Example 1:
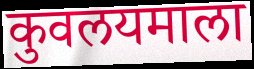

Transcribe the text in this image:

कुवलयमाला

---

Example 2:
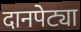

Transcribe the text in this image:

दानपेट्या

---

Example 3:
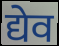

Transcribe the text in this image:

द्येव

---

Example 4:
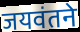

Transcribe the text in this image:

जयवंतने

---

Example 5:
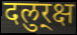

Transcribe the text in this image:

दलुर्क्ष